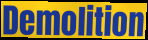
Demolition